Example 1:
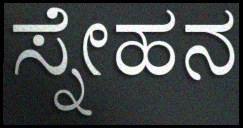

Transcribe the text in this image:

ಸ್ನೇಹನ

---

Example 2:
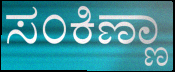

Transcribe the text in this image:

ಸಂಕಿಣ್ಣಾ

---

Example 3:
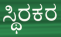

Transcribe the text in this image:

ಸ್ಥಿರಕರ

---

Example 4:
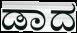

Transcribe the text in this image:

ಡಾದ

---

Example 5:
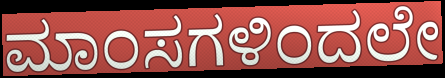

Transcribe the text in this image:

ಮಾಂಸಗಳಿಂದಲೇ